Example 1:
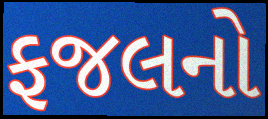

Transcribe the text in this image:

ફજલનો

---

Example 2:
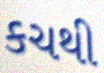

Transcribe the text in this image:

કચથી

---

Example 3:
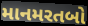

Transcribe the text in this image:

માનમરતબો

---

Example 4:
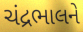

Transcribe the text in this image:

ચંદ્રભાલને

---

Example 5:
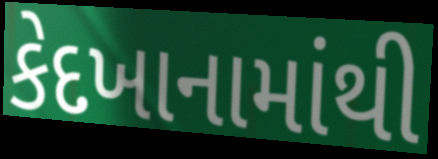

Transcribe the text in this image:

કેદખાનામાંથી